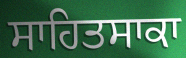
ਸਾਹਿਤਸਾਕਾ